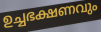
ഉച്ചഭക്ഷണവും